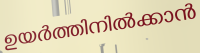
ഉയർത്തിനിൽക്കാൻ